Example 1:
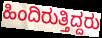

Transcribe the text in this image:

ಹಿಂದಿರುತ್ತಿದ್ದರು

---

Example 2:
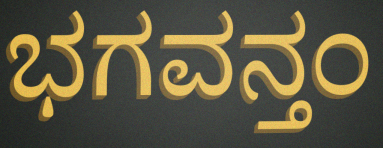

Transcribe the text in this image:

ಭಗವನ್ತಂ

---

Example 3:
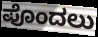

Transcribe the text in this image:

ಪೊಂದಲು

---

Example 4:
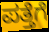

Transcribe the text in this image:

ಪತ್ತೆಗೆ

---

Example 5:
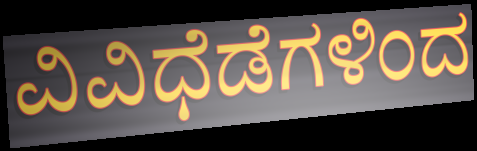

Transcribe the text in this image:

ವಿವಿಧೆಡೆಗಳಿಂದ